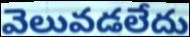
వెలువడలేదు